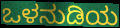
ಒಳನುಡಿಯ